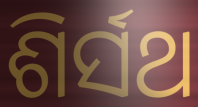
ଶିର୍ସଥ